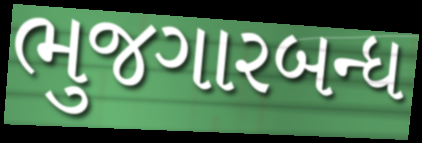
ભુજગારબન્ધ